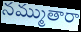
నమ్ముతారా